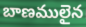
బాణములైన